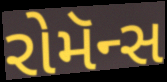
રોમૅન્સ